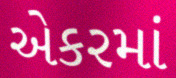
એકરમાં